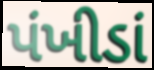
પંખીડાં